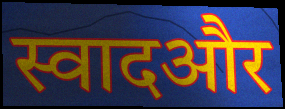
स्वादऔर